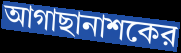
আগাছানাশকের